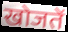
खोजतें